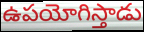
ఉపయోగిస్తాడు